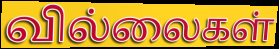
வில்லைகள்